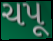
ચપૂ